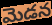
మెడన